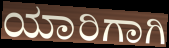
ಯಾರಿಗಾಗಿ